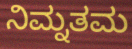
ನಿಮ್ನತಮ